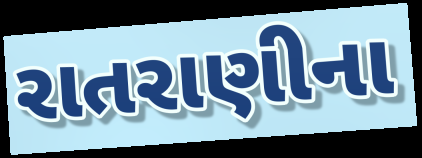
રાતરાણીના